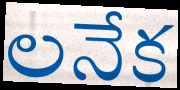
లనేక